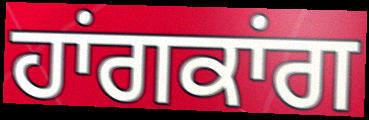
ਹਾਂਗਕਾਂਗ